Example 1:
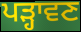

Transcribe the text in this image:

ਪੜ੍ਹਾਵਣ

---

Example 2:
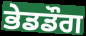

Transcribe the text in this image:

ਭੇਡਡੌਗ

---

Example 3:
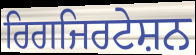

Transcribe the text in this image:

ਰਿਗਜਿਰਟੇਸ਼ਨ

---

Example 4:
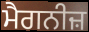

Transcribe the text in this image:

ਮੈਗਨੀਜ਼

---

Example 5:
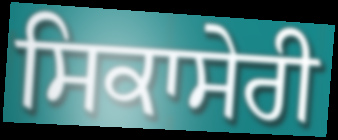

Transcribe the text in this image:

ਸਿਕਾਸੇਰੀ